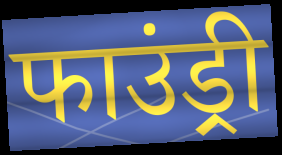
फाउंड्री